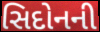
સિદોનની